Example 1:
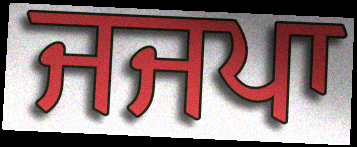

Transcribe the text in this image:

ਜਜਪਾ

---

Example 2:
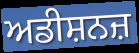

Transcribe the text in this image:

ਅਡੀਸ਼ਨਜ਼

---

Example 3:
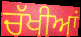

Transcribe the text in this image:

ਚੱਖੀਆਂ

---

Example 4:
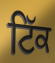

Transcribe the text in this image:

ਟਿੱਕ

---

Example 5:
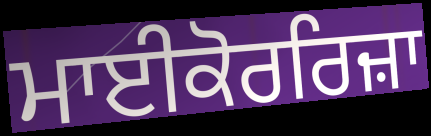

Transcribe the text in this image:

ਮਾਈਕੋਰਰਿਜ਼ਾ